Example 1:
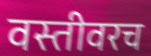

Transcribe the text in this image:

वस्तीवरच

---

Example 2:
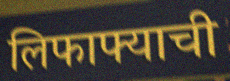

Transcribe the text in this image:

लिफाफ्याची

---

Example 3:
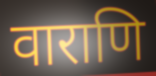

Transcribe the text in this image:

वाराणि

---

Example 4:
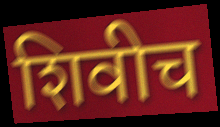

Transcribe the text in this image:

शिवीच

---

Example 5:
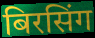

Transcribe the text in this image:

बिरसिंग